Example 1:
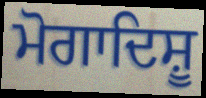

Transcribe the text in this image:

ਮੋਗਾਦਿਸ਼ੂ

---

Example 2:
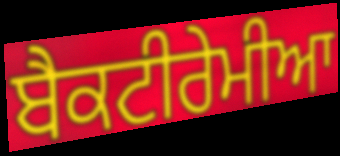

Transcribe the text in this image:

ਬੈਕਟੀਰੇਮੀਆ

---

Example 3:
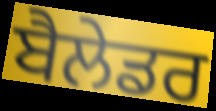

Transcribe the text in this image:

ਬੈਲੇਡਰ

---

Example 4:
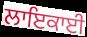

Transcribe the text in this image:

ਲਾਇਕਾਈ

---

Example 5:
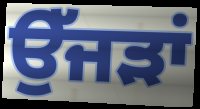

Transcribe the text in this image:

ਉੱਜੜਾਂ